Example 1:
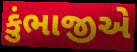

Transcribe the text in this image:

કુંભાજીએ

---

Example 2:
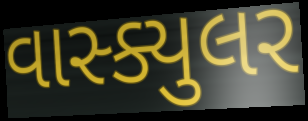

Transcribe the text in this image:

વાસ્ક્યુલર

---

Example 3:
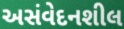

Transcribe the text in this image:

અસંવેદનશીલ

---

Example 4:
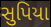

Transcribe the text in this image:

સુપિયા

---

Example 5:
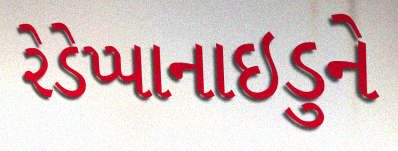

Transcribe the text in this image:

રેડેપ્પાનાઇડુને